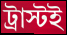
ট্রাস্টই